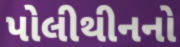
પોલીથીનનો